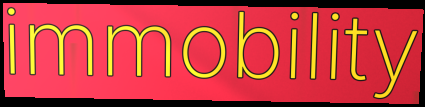
immobility